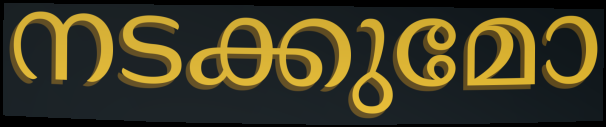
നടക്കുമോ